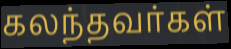
கலந்தவர்கள்